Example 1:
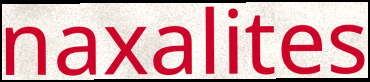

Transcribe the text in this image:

naxalites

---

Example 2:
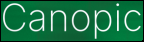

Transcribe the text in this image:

Canopic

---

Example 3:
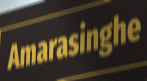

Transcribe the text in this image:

Amarasinghe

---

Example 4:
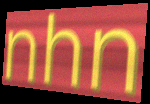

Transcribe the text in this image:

nhn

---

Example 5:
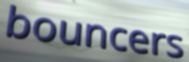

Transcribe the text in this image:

bouncers